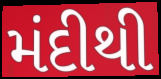
મંદીથી